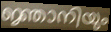
ജ്ഞാനിയും